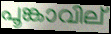
പൂങ്കാവില്